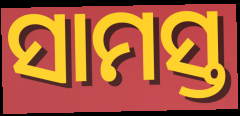
ସାମସ୍ତ